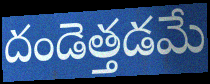
దండెత్తడమే